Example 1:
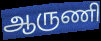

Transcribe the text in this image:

ஆருணி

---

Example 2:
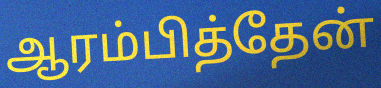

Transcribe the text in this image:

ஆரம்பித்தேன்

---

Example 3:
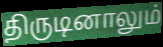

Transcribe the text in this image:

திருடினாலும்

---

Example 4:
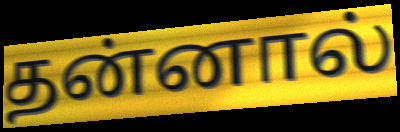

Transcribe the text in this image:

தன்னால்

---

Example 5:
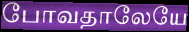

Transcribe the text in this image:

போவதாலேயே